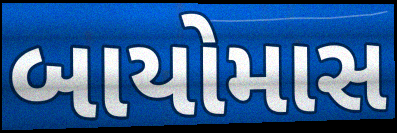
બાયોમાસ